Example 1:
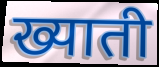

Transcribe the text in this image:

ख्याती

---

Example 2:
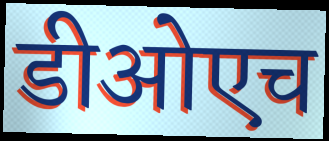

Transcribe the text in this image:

डीओएच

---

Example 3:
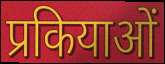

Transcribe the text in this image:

प्रकियाओं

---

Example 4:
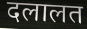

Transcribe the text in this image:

दलालत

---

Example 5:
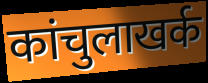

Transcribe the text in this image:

कांचुलाखर्क